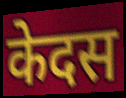
केदस